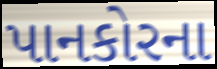
પાનકોરના